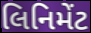
લિનિમેંટ